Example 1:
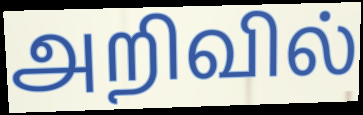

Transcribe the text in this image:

அறிவில்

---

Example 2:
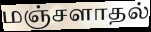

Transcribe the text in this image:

மஞ்சளாதல்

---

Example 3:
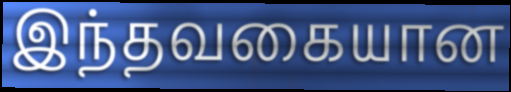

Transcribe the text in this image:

இந்தவகையான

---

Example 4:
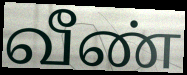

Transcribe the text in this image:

வீண்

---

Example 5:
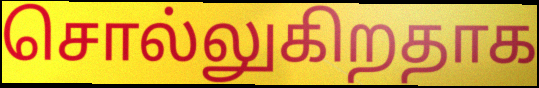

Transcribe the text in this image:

சொல்லுகிறதாக